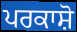
ਪਰਕਾਸ਼ੋ